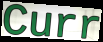
Curr